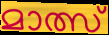
മാത്സ്